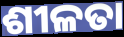
ଶୀଳତା